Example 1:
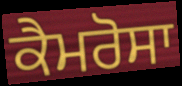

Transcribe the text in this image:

ਕੈਮਰੋਸਾ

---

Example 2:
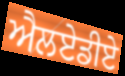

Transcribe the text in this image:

ਐਲਏਡੀਏ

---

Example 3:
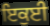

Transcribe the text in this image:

ਇਕੁਈ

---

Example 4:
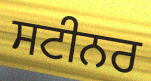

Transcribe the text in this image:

ਸਟੀਨਰ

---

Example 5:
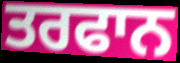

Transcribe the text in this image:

ਤਰਫਾਨ